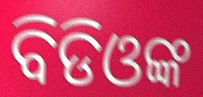
ବିଡିଓଙ୍କ